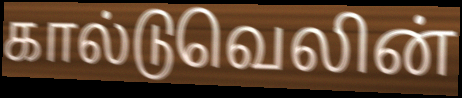
கால்டுவெலின்